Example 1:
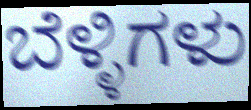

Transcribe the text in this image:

ಬೆಳ್ಳಿಗಳು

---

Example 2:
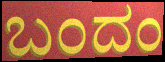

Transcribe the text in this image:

ಬಂದಂ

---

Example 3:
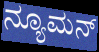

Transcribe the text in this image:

ನ್ಯೂಮನ್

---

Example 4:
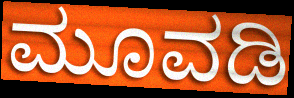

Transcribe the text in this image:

ಮೂವಡಿ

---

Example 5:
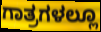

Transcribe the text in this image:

ಗಾತ್ರಗಳಲ್ಲೂ